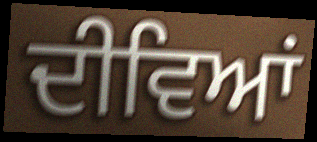
ਦੀਵਿਆਂ